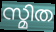
സ്മിത